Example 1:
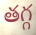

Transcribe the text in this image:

తగ్గ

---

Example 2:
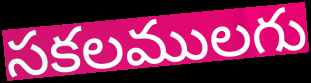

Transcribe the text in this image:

సకలములగు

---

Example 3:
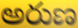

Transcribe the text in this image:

అరుణ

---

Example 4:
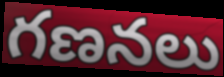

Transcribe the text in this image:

గణనలు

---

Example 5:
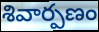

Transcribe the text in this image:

శివార్పణం